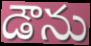
డౌను